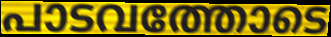
പാടവത്തോടെ